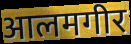
आलमगीर